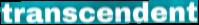
transcendent